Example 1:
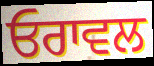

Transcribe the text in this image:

ਓਰਾਵਲ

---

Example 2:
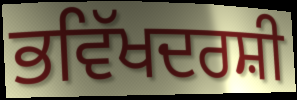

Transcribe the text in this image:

ਭਵਿੱਖਦਰਸ਼ੀ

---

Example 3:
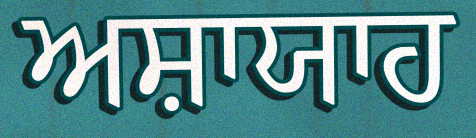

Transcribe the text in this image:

ਅਸ਼ਾਯਾਹ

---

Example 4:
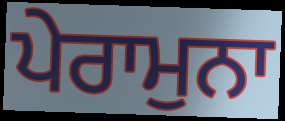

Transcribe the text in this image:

ਪੇਰਾਮੁਨਾ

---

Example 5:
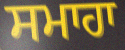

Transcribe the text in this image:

ਸਮਾਹਾ